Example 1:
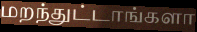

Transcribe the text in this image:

மறந்துட்டாங்களா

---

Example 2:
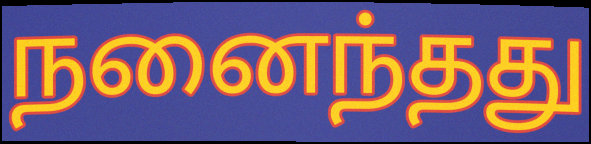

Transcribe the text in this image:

நனைந்தது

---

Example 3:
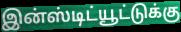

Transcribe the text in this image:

இன்ஸ்டிட்யூட்டுக்கு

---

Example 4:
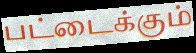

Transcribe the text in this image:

பட்டைக்கும்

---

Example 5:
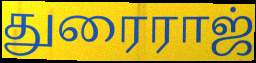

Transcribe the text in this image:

துரைராஜ்